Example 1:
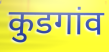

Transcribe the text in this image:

कुडगांव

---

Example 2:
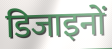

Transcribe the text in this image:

डिजाइनों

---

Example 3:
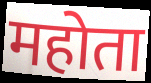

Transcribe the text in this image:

महोता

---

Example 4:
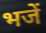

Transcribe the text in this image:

भजें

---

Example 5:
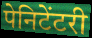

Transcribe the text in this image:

पेनिटेंटरी